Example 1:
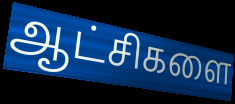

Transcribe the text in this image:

ஆட்சிகளை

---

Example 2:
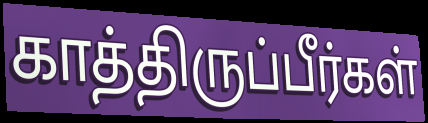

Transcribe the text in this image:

காத்திருப்பீர்கள்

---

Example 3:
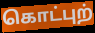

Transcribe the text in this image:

கொட்புற்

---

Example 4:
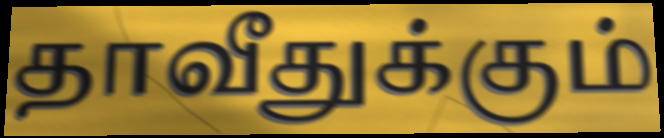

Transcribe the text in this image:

தாவீதுக்கும்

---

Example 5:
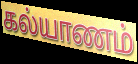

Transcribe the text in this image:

கல்யாணம்